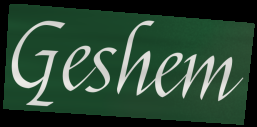
Geshem